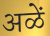
अळें